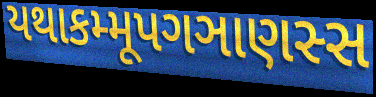
યથાકમ્મૂપગઞાણસ્સ